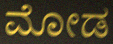
ಮೋಡ